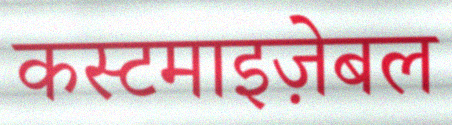
कस्टमाइज़ेबल